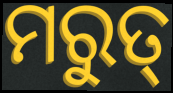
ମରୁତ୍